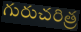
గురుచరిత్ర